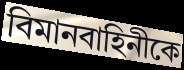
বিমানবাহিনীকে